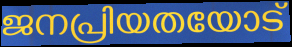
ജനപ്രിയതയോട്